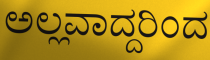
ಅಲ್ಲವಾದ್ದರಿಂದ